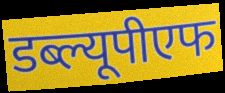
डब्ल्यूपीएफ